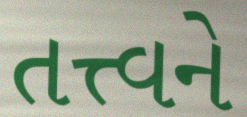
તત્ત્વને